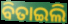
ବିତାଇଲି